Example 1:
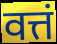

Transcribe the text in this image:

वत्तं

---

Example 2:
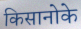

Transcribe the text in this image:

किसानोके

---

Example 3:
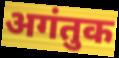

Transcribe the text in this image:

अगंतुक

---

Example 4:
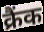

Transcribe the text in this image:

क्रैंक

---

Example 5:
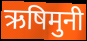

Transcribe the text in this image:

ऋषिमुनी